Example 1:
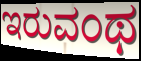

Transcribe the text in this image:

ಇರುವಂಥ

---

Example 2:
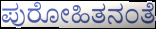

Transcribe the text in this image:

ಪುರೋಹಿತನಂತೆ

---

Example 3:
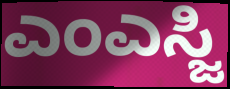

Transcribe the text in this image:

ಎಂಎಸ್ಜಿ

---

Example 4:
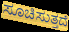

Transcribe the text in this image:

ಸೂಚಿಸುತ್ತದೆ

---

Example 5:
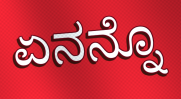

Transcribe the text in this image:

ಏನನ್ನೊ